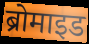
ब्रोमाइड